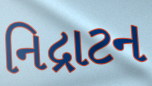
નિદ્રાટન